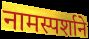
नामस्पर्शाने